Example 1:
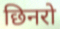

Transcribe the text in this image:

छिनरो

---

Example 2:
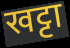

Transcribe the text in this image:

खट्टा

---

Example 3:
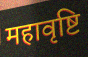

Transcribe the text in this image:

महावृष्टि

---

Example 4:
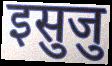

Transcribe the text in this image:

इसुजु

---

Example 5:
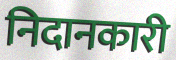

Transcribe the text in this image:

निदानकारी